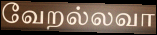
வேறல்லவா